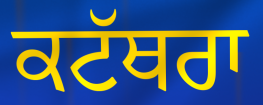
ਕਟੱਥਰਾ